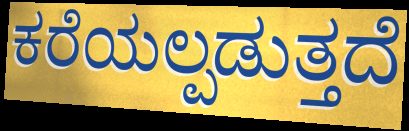
ಕರೆಯಲ್ಪಡುತ್ತದೆ